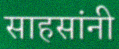
साहसांनी